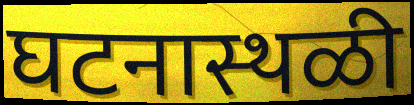
घटनास्थळी